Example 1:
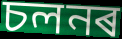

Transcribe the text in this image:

চলনৰ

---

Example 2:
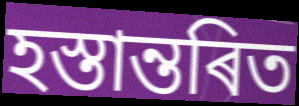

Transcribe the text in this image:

হস্তান্তৰিত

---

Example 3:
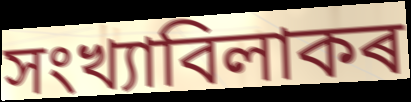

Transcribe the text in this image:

সংখ্যাবিলাকৰ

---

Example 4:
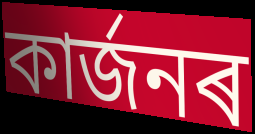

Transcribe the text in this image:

কাৰ্জনৰ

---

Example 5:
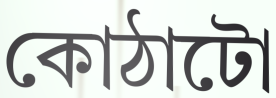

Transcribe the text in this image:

কোঠাটো